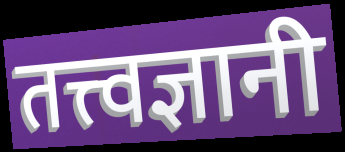
तत्त्वज्ञानी